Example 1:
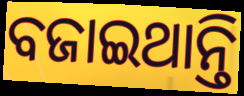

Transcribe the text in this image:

ବଜାଇଥାନ୍ତି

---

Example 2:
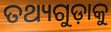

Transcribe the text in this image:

ତଥ୍ୟଗୁଡ଼ାକୁ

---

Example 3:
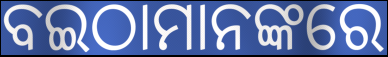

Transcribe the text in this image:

ବଇଠାମାନଙ୍କରେ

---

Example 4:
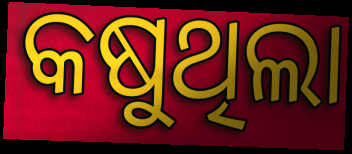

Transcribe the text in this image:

କଷୁଥିଲା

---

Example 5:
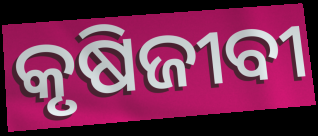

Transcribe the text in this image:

କୃଷିଜୀବୀ